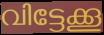
വിട്ടേക്കൂ